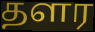
தளர